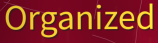
Organized